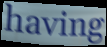
having